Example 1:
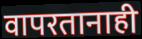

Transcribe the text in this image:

वापरतानाही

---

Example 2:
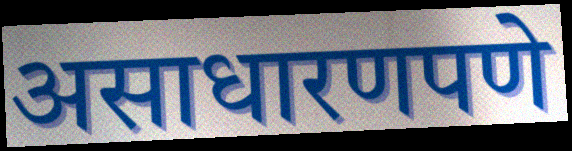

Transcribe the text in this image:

असाधारणपणे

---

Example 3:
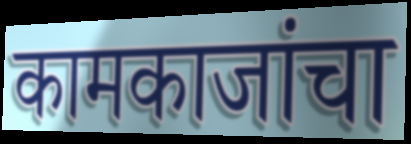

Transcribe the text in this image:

कामकाजांचा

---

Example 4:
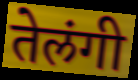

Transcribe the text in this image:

तेलंगी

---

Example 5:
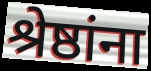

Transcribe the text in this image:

श्रेष्ठांना